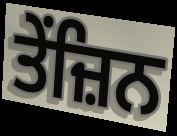
ਤੇਂਜ਼ਿਨ